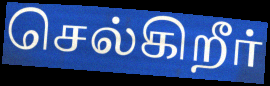
செல்கிறீர்